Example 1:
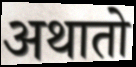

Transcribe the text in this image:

अथातो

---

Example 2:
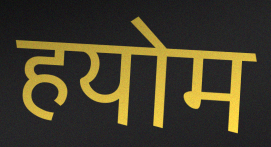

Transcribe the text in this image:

हयोम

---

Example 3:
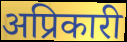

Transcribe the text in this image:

अप्रिकारी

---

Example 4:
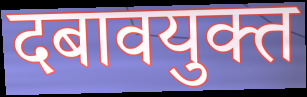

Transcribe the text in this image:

दबावयुक्त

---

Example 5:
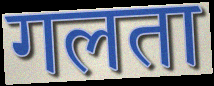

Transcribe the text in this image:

गलता